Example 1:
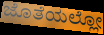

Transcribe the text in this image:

ಜೊತೆಯಲ್ಲೋ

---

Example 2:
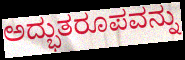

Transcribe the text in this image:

ಅದ್ಭುತರೂಪವನ್ನು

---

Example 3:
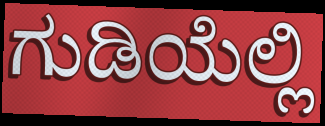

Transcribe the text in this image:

ಗುಡಿಯೆಲ್ಲಿ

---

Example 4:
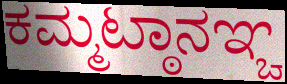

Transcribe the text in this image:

ಕಮ್ಮಟ್ಠಾನಞ್ಚ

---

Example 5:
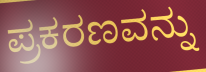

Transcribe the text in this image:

ಪ್ರಕರಣವನ್ನು